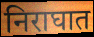
निराघात